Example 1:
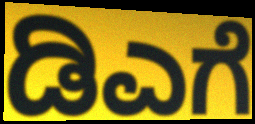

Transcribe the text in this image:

ಡಿಎಗೆ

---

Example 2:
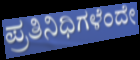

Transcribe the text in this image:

ಪ್ರತಿನಿಧಿಗಳೆಂದೇ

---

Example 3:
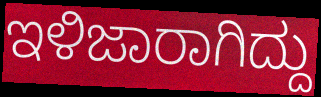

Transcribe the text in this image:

ಇಳಿಜಾರಾಗಿದ್ದು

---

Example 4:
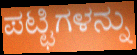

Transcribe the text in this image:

ಪಟ್ಟಿಗಳನ್ನು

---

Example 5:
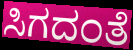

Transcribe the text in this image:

ಸಿಗದಂತೆ